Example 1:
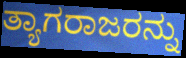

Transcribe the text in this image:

ತ್ಯಾಗರಾಜರನ್ನು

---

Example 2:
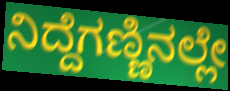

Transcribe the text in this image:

ನಿದ್ದೆಗಣ್ಣಿನಲ್ಲೇ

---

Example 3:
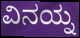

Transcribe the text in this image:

ವಿನಯ್ನ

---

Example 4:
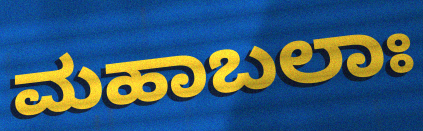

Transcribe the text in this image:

ಮಹಾಬಲಾಃ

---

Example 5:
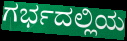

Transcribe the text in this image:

ಗರ್ಭದಲ್ಲಿಯ